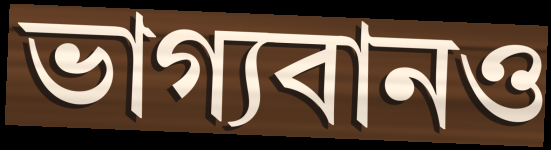
ভাগ্যবানও